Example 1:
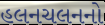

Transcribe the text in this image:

હલનચલનનો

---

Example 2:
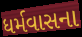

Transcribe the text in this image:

ધર્મવાસના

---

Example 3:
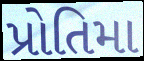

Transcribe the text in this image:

પ્રોતિમા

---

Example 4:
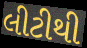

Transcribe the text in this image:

લીટીથી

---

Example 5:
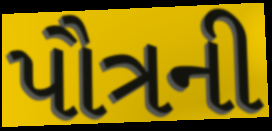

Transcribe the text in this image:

પૌત્રની